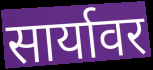
सार्यावर